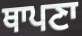
ਥਾਪਣਾ